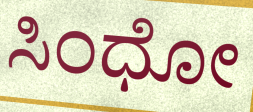
ಸಿಂಧೋ